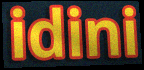
idini